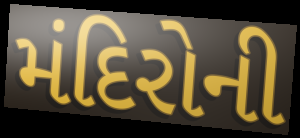
મંદિરોની